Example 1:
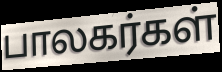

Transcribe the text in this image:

பாலகர்கள்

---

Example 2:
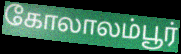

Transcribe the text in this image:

கோலாலம்பூர்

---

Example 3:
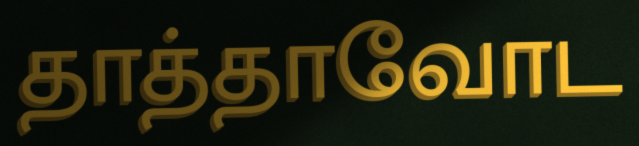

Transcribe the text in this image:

தாத்தாவோட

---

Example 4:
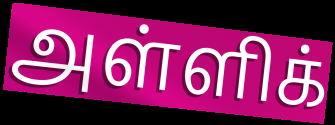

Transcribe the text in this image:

அள்ளிக்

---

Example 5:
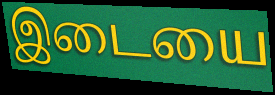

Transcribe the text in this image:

இடையை